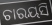
ଚାରୟସି